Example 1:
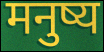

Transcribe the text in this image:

मनुष्य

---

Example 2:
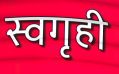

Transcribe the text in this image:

स्वगृही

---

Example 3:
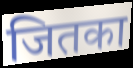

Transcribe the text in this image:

जितका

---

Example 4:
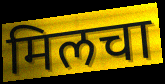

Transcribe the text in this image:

मिलचा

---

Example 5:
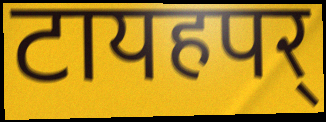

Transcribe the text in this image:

टायहपर्